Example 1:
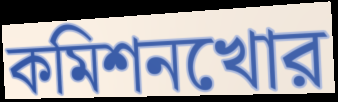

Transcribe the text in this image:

কমিশনখোর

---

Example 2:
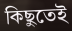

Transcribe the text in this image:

কিছুতেই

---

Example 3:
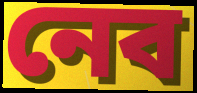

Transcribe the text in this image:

নেব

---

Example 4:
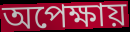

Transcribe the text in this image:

অপেক্ষায়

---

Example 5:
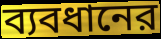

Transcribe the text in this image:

ব্যবধানের